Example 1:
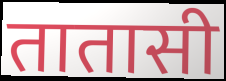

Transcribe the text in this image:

तातासी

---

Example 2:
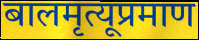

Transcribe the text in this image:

बालमृत्यूप्रमाण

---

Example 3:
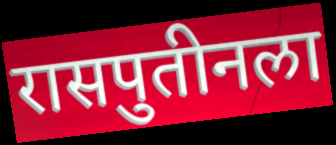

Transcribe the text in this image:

रासपुतीनला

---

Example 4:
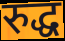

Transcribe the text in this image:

रुद्ध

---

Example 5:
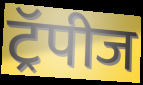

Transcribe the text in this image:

ट्रॅपीज